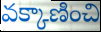
వక్కాణించి